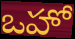
ఒహో